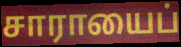
சாராயைப்